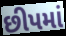
છીપમાં